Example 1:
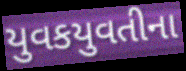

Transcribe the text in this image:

યુવકયુવતીના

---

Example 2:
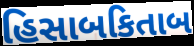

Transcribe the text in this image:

હિસાબકિતાબ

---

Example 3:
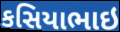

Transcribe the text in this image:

કસિયાભાઇ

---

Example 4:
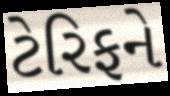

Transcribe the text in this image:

ટેરિફને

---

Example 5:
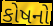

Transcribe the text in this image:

કોષનો